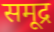
समूद्र